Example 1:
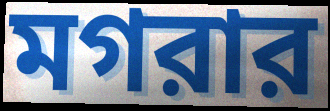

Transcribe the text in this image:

মগরার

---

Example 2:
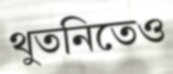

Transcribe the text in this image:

থুতনিতেও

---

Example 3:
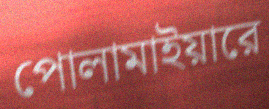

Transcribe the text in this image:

পোলামাইয়ারে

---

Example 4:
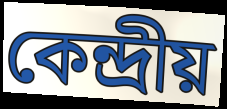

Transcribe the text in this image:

কেন্দ্রীয়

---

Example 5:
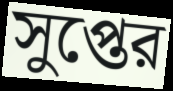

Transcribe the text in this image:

সুপ্তের